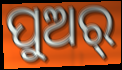
ପୁଅର୍